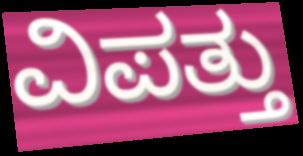
ವಿಪತ್ತು